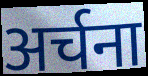
अर्चना